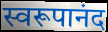
स्‍वरूपानंद